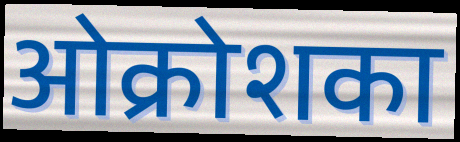
ओक्रोशका